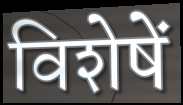
विशेषें